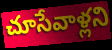
చూసేవాళ్లని